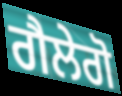
ਗੈਲੇਗੋ